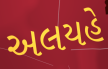
અલયહે